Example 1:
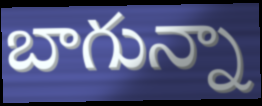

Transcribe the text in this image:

బాగున్నా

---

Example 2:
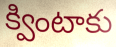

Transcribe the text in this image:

క్వింటాకు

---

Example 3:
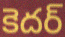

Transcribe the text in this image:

కెదర్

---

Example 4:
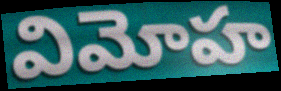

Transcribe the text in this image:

విమోహ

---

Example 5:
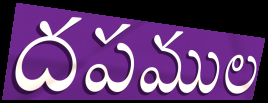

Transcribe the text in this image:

దపముల